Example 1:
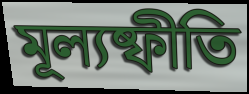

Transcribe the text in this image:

মূল্যষ্ফীতি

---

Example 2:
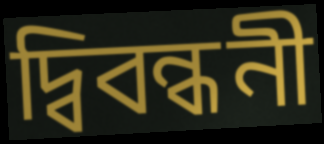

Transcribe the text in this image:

দ্বিবন্ধনী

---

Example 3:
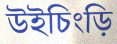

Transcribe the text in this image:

উইচিংড়ি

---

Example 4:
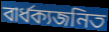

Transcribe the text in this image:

বার্ধক্যজনিত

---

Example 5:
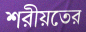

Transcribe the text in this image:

শরীয়তের